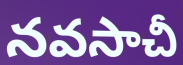
నవసాచీ